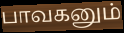
பாவகனும்